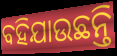
ବହିଯାଉଛନ୍ତି